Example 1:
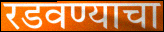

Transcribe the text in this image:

रडवण्याचा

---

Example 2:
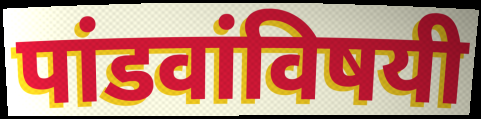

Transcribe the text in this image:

पांडवांविषयी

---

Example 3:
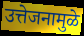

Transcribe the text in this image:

उत्तेजनामुळे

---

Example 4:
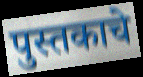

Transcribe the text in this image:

पुस्तकाचे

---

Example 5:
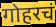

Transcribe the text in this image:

गोहरचं